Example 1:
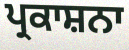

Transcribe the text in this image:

ਪ੍ਰਕਾਸ਼ਨਾ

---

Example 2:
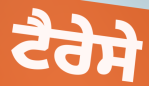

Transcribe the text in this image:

ਟੈਰੇਸੇ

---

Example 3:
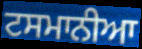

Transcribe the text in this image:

ਟਸਮਾਨੀਆ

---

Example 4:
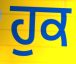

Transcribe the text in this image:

ਹੁਕ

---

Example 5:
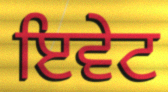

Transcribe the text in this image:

ਇਵੇਟ